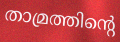
താമ്രത്തിന്റെ